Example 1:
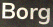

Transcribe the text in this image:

Borg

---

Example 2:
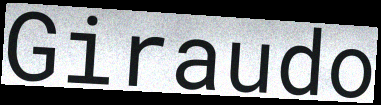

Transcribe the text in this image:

Giraudo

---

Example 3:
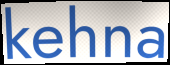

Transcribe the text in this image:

kehna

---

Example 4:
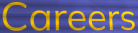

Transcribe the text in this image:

Careers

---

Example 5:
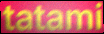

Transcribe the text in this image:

tatami